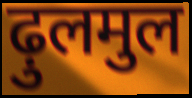
ढ़ुलमुल